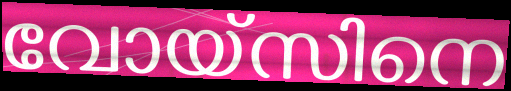
വോയ്സിനെ